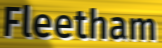
Fleetham